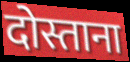
दोस्ताना